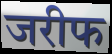
जरीफ